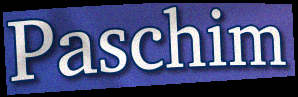
Paschim